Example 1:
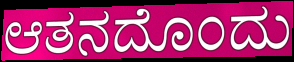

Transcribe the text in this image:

ಆತನದೊಂದು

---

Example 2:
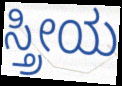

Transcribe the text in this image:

ಸ್ತ್ರೀಯ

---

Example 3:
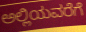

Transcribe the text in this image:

ಅಲ್ಲಿಯವರೆಗೆ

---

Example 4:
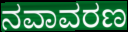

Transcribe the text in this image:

ನವಾವರಣ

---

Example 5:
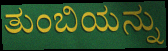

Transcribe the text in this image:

ತುಂಬಿಯನ್ನು